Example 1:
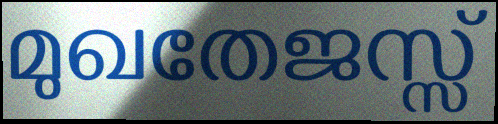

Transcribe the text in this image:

മുഖതേജസ്സ്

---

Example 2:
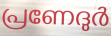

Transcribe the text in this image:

പ്രണേദുർ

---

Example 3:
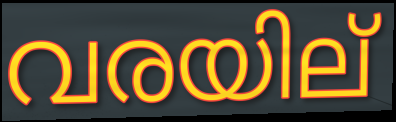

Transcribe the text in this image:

വരയില്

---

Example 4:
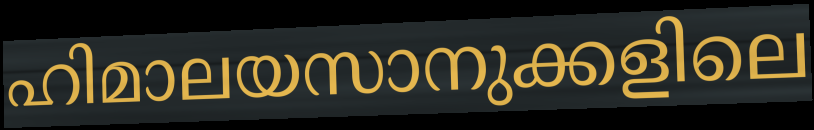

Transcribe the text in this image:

ഹിമാലയസാനുക്കളിലെ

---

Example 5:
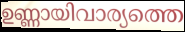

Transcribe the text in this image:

ഉണ്ണായിവാര്യത്തെ